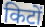
किटों